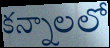
కన్నాలలో